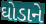
ઘોડાને